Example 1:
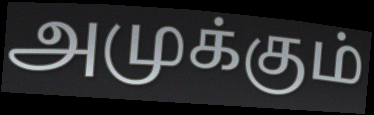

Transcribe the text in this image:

அமுக்கும்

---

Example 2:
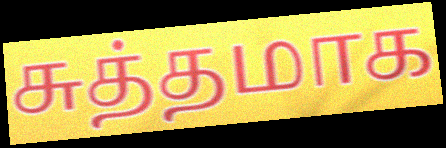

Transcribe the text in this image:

சுத்தமாக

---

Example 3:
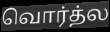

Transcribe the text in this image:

வொர்த்ல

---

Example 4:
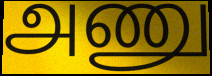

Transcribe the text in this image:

அணு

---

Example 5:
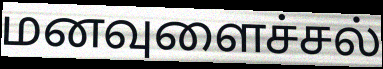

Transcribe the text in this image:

மனவுளைச்சல்